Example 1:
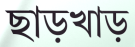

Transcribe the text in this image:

ছাড়খাড়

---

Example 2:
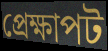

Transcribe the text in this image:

প্রেক্ষাপট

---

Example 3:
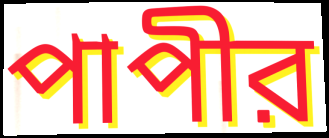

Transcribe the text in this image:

পাপীর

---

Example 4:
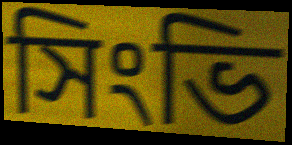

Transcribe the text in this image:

সিংভি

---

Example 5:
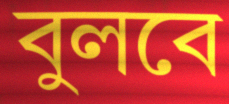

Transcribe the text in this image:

বুলবে